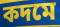
কদমে